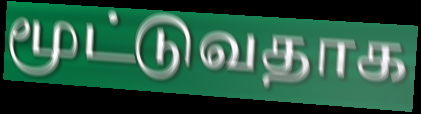
மூட்டுவதாக